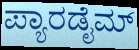
ಪ್ಯಾರಡೈಮ್